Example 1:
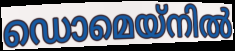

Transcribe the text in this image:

ഡൊമെയ്നിൽ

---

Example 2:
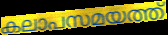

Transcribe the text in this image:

കലാപസമയത്ത്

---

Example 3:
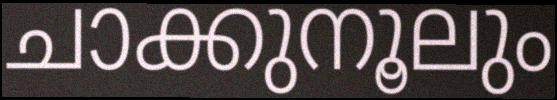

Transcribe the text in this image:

ചാക്കുനൂലും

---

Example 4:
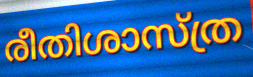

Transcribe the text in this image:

രീതിശാസ്ത്ര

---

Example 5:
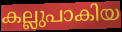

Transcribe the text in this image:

കല്ലുപാകിയ